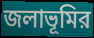
জলাভূমির